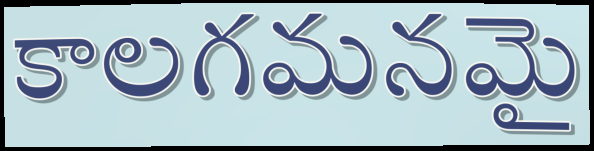
కాలగమనమై